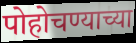
पोहोचण्याच्या